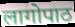
लागोपाठ